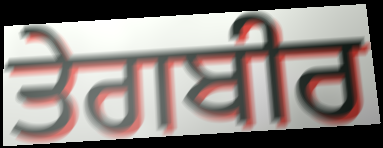
ਤੇਗਬੀਰ